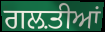
ਗਲ਼ਤੀਆਂ